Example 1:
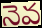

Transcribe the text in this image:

నెవ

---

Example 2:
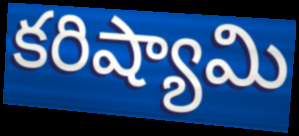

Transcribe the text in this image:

కరిష్యామి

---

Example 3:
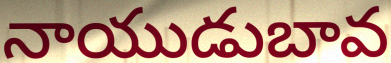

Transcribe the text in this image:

నాయుడుబావ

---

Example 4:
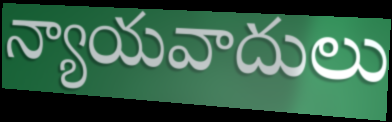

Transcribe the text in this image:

న్యాయవాదులు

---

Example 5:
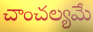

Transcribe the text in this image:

చాంచల్యమే